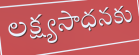
లక్ష్యసాధనకు